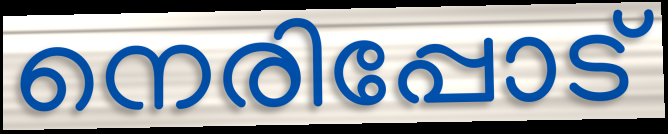
നെരിപ്പോട്